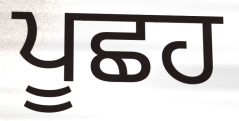
ਪੂਛਹ